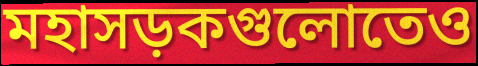
মহাসড়কগুলোতেও